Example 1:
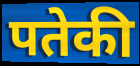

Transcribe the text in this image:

पतेकी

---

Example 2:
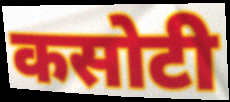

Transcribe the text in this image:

कसोटी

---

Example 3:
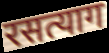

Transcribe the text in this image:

रसत्याग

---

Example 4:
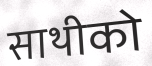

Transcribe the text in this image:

साथीको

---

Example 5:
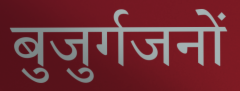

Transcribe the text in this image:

बुजुर्गजनों